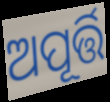
ଅପୂର୍ତ୍ତି